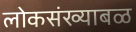
लोकसंख्याबळ